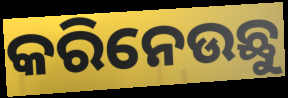
କରିନେଉଛୁ